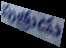
పుత్రుడు